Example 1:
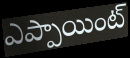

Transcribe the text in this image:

ఎప్పాయింట్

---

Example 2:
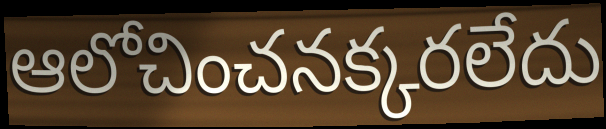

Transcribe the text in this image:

ఆలోచించనక్కరలేదు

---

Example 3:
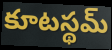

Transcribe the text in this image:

కూటస్థమ్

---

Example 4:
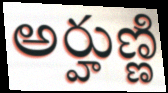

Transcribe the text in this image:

అర్హుణ్ణి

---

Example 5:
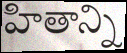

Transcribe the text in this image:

హితాన్ని